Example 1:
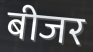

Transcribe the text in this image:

बीजर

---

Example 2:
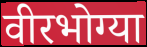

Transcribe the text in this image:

वीरभोग्या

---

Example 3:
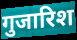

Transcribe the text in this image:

गुजारिश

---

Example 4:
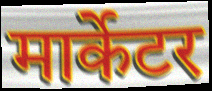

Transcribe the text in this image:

मार्केटर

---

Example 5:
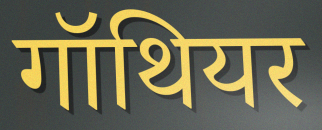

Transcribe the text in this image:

गॉथियर